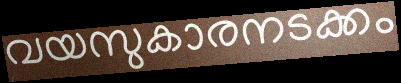
വയസുകാരനടക്കം